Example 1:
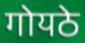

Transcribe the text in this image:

गोयठे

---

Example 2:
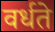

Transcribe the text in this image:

वर्धते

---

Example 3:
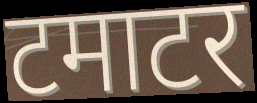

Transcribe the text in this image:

टमाटर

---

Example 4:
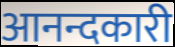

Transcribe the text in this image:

आनन्दकारी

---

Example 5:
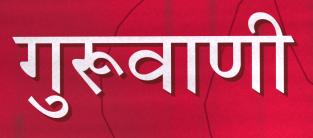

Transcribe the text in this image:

गुरूवाणी